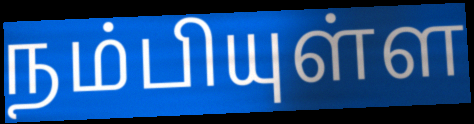
நம்பியுள்ள